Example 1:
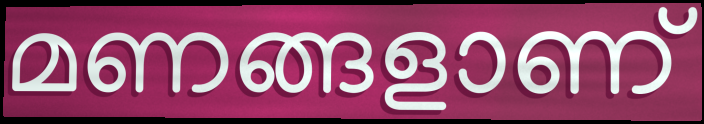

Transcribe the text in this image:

മണങ്ങളാണ്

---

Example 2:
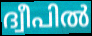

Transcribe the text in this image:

ദ്വീപിൽ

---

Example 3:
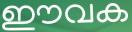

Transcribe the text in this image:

ഈവക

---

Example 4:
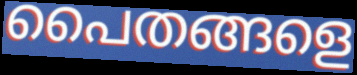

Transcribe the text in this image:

പൈതങ്ങളെ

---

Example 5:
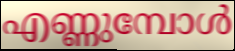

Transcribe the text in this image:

എണ്ണുമ്പോൾ